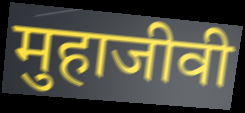
मुहाजीवी